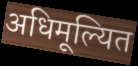
अधिमूल्यित